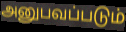
அனுபவப்படும்